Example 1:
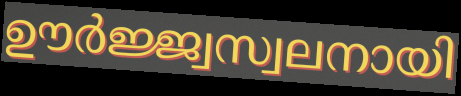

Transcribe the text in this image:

ഊർജ്ജ്വസ്വലനായി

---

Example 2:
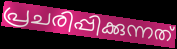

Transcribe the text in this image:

പ്രചരിപ്പിക്കുന്നത്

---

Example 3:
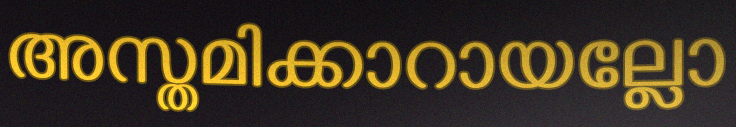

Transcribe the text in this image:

അസ്തമിക്കാറായല്ലോ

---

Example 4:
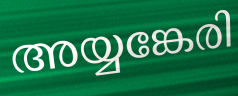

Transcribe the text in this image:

അയ്യങ്കേരി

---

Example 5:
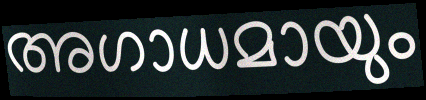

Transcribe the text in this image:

അഗാധമായും